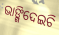
ଭାଙ୍ଗିଦେଇଚି